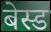
बेस्ड